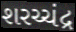
શરચ્ચંદ્ર